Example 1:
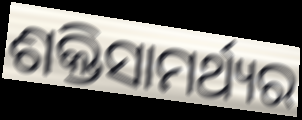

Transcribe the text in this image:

ଶକ୍ତିସାମର୍ଥ୍ୟର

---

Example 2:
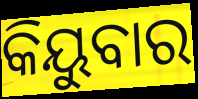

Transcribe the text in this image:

କିୟୁବାର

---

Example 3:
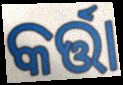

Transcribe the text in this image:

କର୍ତ୍ତା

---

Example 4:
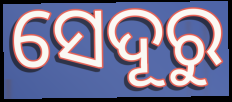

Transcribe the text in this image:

ସେଦୂରୁ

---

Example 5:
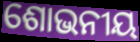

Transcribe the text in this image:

ଶୋଭନୀୟ